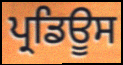
ਪ੍ਰਡਿਊਸ